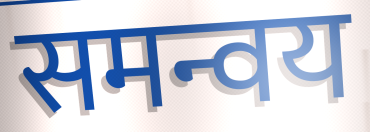
समन्वय